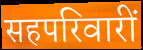
सहपरिवारीं